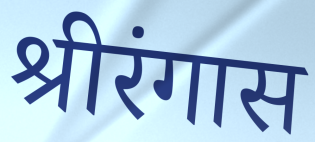
श्रीरंगास